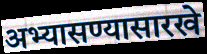
अभ्यासण्यासारखे